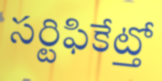
సర్టిఫికేట్తో